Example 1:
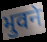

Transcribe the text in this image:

भुवने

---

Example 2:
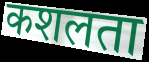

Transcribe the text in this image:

कशलता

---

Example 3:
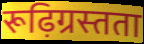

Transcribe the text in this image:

रूढ़िग्रस्तता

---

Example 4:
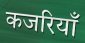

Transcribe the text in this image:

कजरियाँ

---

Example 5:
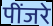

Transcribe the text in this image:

पींजरे